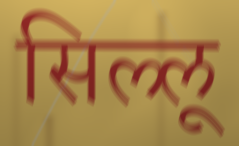
सिल्लू